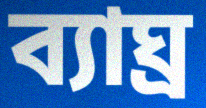
ব্যাঘ্ৰ